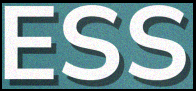
ESS